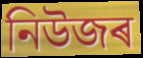
নিউজৰ